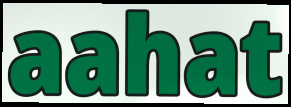
aahat